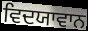
ਵਿਦਯਾਵਾਨ